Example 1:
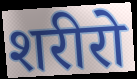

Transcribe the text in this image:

शरीरो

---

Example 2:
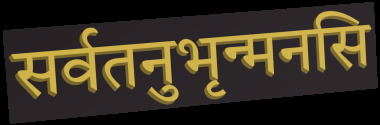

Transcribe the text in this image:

सर्वतनुभृन्मनसि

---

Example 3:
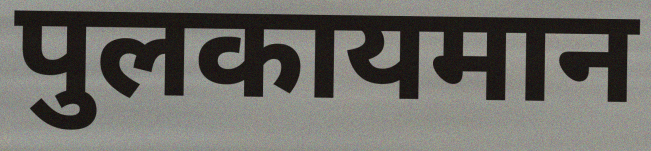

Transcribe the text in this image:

पुलकायमान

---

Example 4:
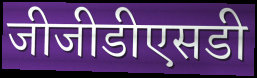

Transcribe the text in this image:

जीजीडीएसडी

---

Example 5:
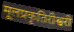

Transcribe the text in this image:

मूलप्रकृतिरीश्वरी